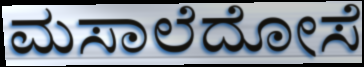
ಮಸಾಲೆದೋಸೆ